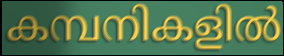
കമ്പനികളിൽ